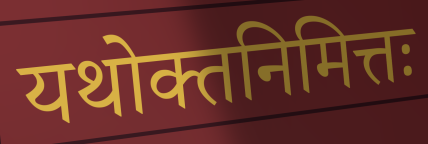
यथोक्तनिमित्तः